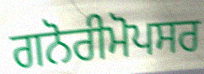
ਗਨੋਰੀਮੋਪਸਰ